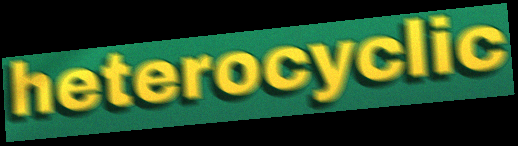
heterocyclic